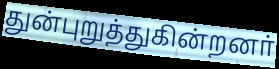
துன்புறுத்துகின்றனர்